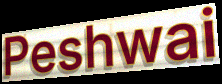
Peshwai